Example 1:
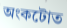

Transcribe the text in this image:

অংকটোত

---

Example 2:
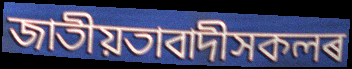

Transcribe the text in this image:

জাতীয়তাবাদীসকলৰ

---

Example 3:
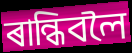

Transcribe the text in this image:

ৰান্ধিবলৈ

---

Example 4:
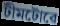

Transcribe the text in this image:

টীমটোৱে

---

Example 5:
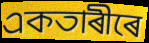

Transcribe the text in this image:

একতাৰীৰে